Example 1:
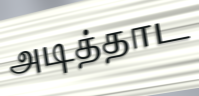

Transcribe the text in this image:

அடித்தாட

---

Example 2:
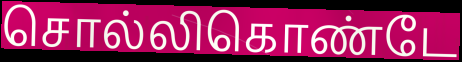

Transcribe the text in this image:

சொல்லிகொண்டே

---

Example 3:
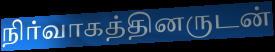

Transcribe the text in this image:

நிர்வாகத்தினருடன்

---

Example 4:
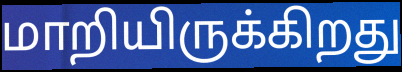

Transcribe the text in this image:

மாறியிருக்கிறது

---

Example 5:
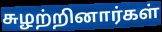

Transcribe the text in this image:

சுழற்றினார்கள்